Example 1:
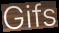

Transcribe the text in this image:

Gifs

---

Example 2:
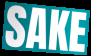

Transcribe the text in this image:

SAKE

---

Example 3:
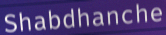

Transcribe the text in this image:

Shabdhanche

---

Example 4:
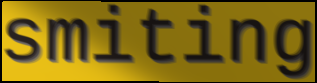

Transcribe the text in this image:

smiting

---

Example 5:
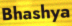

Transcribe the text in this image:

Bhashya